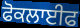
ਫੋਕਲਾਈਫ